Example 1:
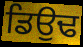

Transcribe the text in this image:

ਡਿਉਢ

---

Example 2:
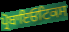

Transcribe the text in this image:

ਪ੍ਰੋਬਾਇਓਟਿਕਸ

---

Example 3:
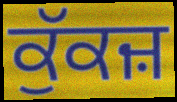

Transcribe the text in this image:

ਕੁੱਕਜ਼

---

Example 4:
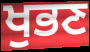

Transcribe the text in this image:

ਖੁਭਣ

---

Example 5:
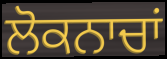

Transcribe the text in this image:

ਲੋਕਨਾਚਾਂ